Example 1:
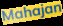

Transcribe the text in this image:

Mahajan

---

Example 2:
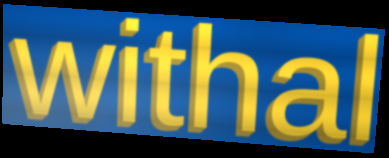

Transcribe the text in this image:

withal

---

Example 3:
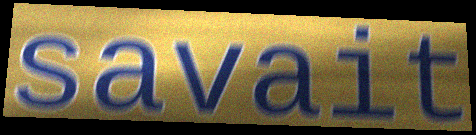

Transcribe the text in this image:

savait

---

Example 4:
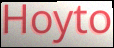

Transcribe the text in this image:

Hoyto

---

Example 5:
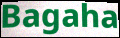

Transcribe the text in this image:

Bagaha